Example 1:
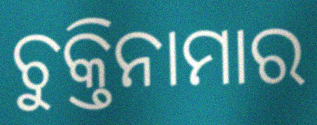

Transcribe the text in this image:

ଚୁକ୍ତିନାମାର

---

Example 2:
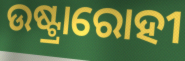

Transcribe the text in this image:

ଉଷ୍ଟ୍ରାରୋହୀ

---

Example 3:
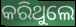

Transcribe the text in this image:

କରିଥୁଲେ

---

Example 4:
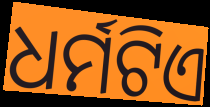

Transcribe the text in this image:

ଧର୍ମଟିଏ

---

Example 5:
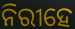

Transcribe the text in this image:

ନିରୀହେ